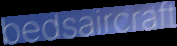
bedsaircraft